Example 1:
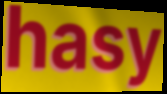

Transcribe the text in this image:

hasy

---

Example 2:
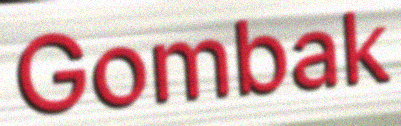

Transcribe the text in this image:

Gombak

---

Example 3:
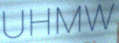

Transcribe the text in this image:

UHMW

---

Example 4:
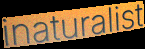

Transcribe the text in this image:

inaturalist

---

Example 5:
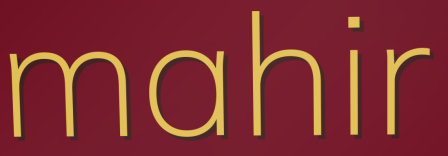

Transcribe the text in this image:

mahir